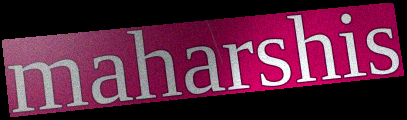
maharshis